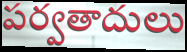
పర్వతాదులు